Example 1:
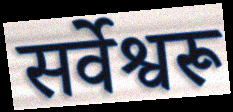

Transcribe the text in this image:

सर्वेश्वरू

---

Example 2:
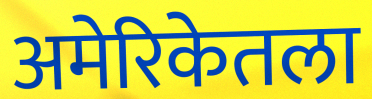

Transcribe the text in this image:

अमेरिकेतला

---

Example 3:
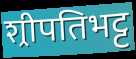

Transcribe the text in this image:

श्रीपतिभट्ट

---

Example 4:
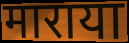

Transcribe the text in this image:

माराया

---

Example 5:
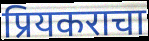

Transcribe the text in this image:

प्रियकराचा